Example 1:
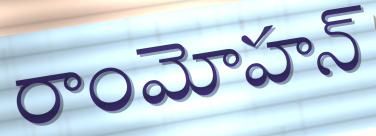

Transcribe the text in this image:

రాంమోహన్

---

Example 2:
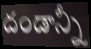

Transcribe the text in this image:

దండాన్నీ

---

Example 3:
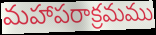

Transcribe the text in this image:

మహాపరాక్రమము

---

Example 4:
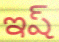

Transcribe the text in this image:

ఇష్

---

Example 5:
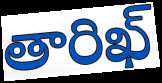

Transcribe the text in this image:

తారిఖ్